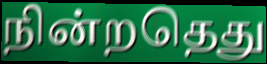
நின்றதெது